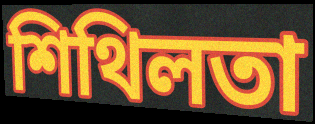
শিথিলতা